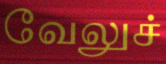
வேலுச்